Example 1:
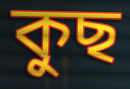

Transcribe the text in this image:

কুছ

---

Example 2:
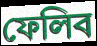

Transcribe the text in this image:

ফেলিব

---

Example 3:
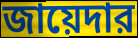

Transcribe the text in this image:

জায়েদার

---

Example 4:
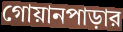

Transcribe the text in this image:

গোয়ানপাড়ার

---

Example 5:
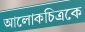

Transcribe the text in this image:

আলোকচিত্রকে